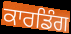
ਕਾਰਡਿੰਗ